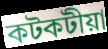
কটকটীয়া